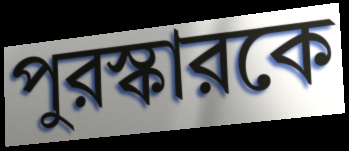
পুরস্কারকে